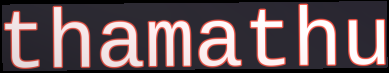
thamathu